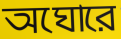
অঘোরে